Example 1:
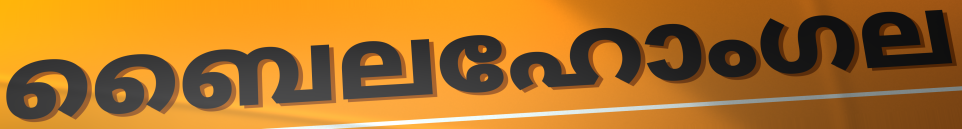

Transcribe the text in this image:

ബൈലഹോംഗല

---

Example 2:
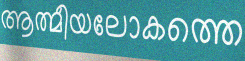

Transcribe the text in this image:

ആത്മീയലോകത്തെ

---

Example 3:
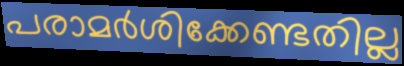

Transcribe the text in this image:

പരാമർശിക്കേണ്ടതില്ല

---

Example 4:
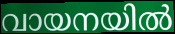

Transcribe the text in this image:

വായനയിൽ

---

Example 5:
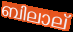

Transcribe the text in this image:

ബിലാല്